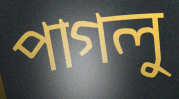
পাগলু